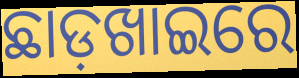
ଛାଡ଼ଖାଇରେ